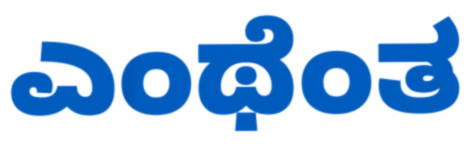
ಎಂಥೆಂತ